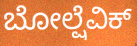
ಬೋಲ್ಷೆವಿಕ್